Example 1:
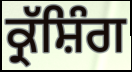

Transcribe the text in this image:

ਕ੍ਰੱਸ਼ਿੰਗ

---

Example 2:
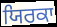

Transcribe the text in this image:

ਯਿਰਕਾ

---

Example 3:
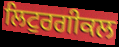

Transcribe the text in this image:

ਲਿਟੁਰਗੀਕਲ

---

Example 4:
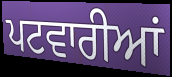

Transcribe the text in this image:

ਪਟਵਾਰੀਆਂ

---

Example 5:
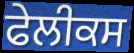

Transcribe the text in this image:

ਫੇਲੀਕਸ